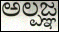
ಅಲ್ಪಜ್ಞ